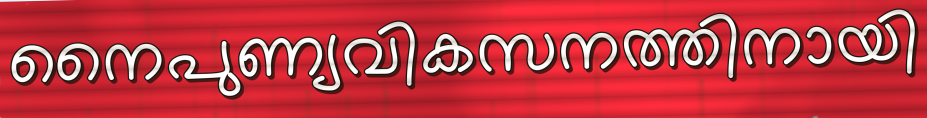
നൈപുണ്യവികസനത്തിനായി